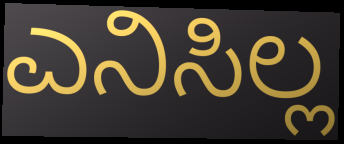
ಎನಿಸಿಲ್ಲ